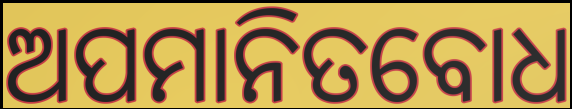
ଅପମାନିତବୋଧ